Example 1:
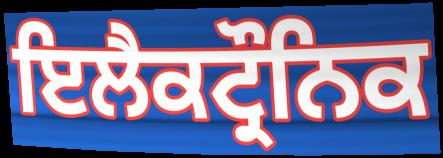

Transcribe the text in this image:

ਇਲੈਕਟ੍ਰੌਨਿਕ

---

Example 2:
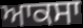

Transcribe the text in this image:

ਆਕਸਾ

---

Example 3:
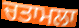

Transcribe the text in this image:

ਚਤਾਮਲਾ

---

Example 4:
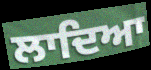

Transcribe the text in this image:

ਲਾਦਿਆ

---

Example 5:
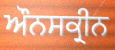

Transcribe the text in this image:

ਔਨਸਕ੍ਰੀਨ